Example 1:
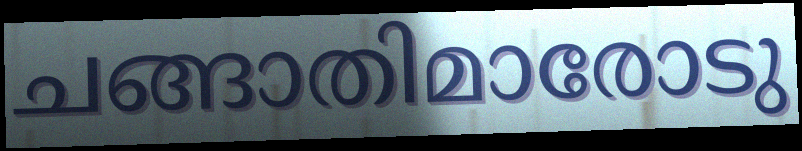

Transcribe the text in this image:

ചങ്ങാതിമാരോടു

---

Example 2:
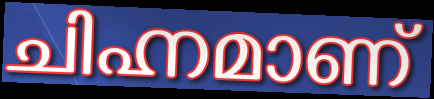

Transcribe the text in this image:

ചിഹ്നമാണ്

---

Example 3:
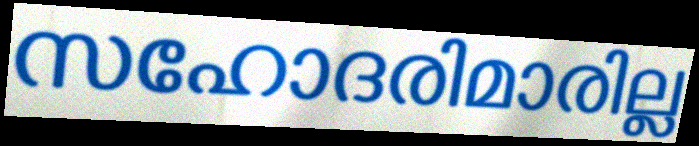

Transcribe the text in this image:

സഹോദരിമാരില്ല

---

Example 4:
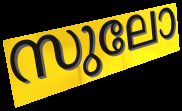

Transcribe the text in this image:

സുലോ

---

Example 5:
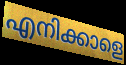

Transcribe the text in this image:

എനിക്കാളെ